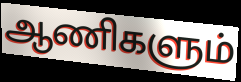
ஆணிகளும்